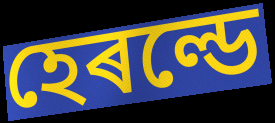
হেৰল্ডে